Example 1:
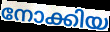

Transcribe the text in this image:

നോക്കിയ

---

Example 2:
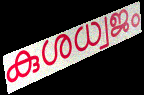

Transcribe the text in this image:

കുശധ്വജം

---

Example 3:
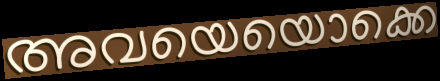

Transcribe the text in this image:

അവയെയൊക്കെ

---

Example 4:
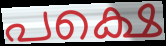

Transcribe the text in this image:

പക്ഷെ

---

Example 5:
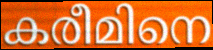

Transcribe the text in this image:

കരീമിനെ